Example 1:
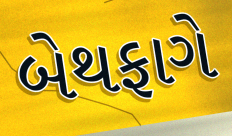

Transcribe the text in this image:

બેથફાગે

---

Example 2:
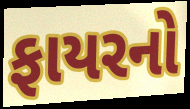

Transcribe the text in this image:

ફાયરનો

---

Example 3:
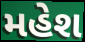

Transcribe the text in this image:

મહેશ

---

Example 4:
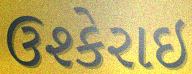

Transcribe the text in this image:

ઉશ્કેરાઇ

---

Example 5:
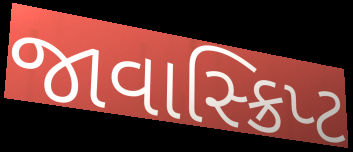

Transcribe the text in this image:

જાવાસ્ક્રિપ્ટ